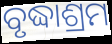
ବୃଦ୍ଧାଶ୍ରମ